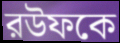
রউফকে